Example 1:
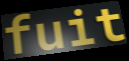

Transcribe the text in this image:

fuit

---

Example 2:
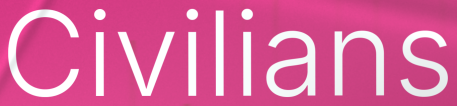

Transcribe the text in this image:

Civilians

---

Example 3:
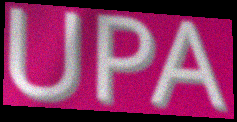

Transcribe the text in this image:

UPA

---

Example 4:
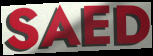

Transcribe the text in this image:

SAED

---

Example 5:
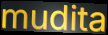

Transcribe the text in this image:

mudita